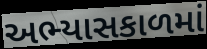
અભ્યાસકાળમાં